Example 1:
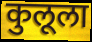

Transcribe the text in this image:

कुलूला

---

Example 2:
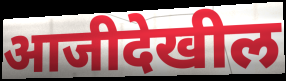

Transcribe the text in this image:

आजीदेखील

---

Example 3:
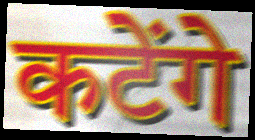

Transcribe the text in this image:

कटेंगे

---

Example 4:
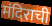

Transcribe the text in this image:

मंदिराची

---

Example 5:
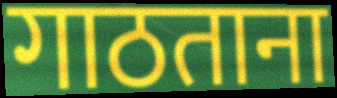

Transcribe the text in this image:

गाठताना